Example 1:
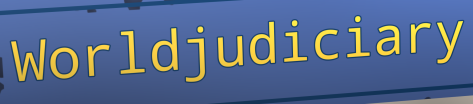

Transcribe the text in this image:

Worldjudiciary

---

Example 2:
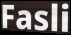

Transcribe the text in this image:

Fasli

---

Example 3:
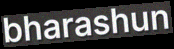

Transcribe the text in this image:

bharashun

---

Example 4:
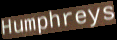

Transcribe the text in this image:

Humphreys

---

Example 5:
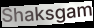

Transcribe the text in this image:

Shaksgam